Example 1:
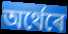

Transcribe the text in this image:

অৰ্থেৰে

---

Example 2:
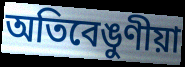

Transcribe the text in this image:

অতিবেঙুণীয়া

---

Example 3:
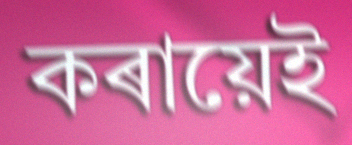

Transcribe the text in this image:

কৰায়েই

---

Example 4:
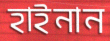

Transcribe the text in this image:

হাইনান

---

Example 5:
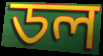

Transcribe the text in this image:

ডল